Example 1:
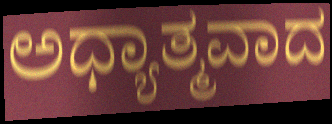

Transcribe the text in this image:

ಅಧ್ಯಾತ್ಮವಾದ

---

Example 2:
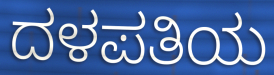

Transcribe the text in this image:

ದಳಪತಿಯ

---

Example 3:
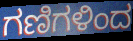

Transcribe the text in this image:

ಗಣಿಗಳಿಂದ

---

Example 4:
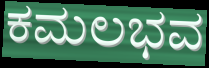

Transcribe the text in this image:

ಕಮಲಭವ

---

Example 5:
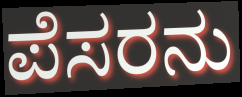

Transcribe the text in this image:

ಪೆಸರನು